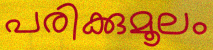
പരിക്കുമൂലം